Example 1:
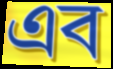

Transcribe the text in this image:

এব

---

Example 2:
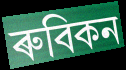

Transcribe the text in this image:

ৰুবিকন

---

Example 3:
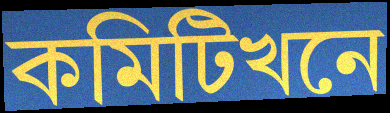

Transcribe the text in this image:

কমিটিখনে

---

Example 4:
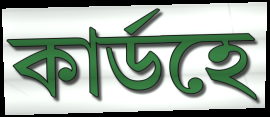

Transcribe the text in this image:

কাৰ্ডহে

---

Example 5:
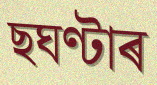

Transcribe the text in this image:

ছঘণ্টাৰ